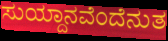
ಸುಯ್ದಾನವೆಂದೆನುತ